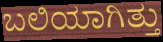
ಬಲಿಯಾಗಿತ್ತು